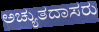
ಅಚ್ಯುತದಾಸರು